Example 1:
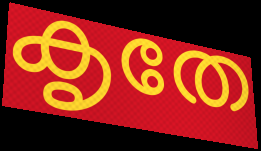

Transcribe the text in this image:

കൃതേ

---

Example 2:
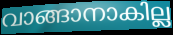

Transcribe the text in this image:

വാങ്ങാനാകില്ല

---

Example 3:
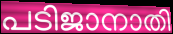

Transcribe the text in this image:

പടിജാനാതി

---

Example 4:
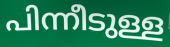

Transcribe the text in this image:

പിന്നീടുള്ള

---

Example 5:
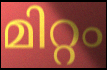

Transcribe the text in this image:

മിറ്റം